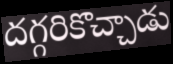
దగ్గరికొచ్చాడు